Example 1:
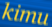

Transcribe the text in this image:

kimu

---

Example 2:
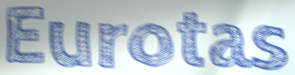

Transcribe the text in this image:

Eurotas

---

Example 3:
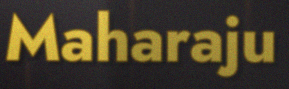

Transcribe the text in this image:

Maharaju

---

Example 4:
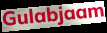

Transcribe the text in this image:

Gulabjaam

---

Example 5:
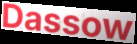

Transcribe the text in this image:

Dassow